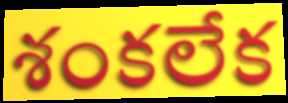
శంకలేక